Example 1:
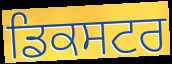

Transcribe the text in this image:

ਡਿਕਸਟਰ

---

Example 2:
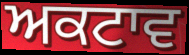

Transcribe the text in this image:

ਅਕਟਾਵ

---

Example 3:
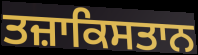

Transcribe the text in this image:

ਤਜ਼ਾਕਿਸਤਾਨ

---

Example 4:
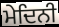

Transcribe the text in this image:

ਮੇਦਿਨੀ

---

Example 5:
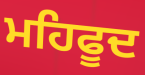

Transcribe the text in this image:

ਮਹਿਫੂਦ